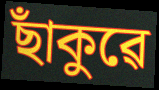
ছাঁকুৱে